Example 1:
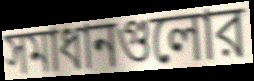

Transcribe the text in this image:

সমাধানগুলোর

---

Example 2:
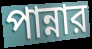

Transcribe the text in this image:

পান্নার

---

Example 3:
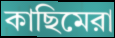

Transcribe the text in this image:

কাছিমেরা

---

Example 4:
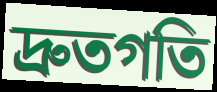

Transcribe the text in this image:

দ্রুতগতি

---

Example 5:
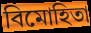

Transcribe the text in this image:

বিমোহিতা